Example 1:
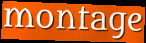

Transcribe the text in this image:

montage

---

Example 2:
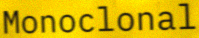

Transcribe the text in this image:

Monoclonal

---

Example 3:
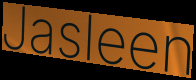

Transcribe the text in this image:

Jasleen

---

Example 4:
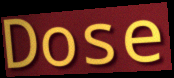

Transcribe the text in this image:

Dose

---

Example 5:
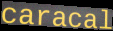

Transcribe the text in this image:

caracal